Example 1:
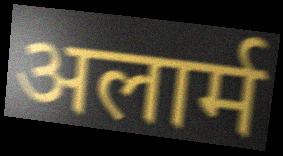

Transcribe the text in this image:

अलार्म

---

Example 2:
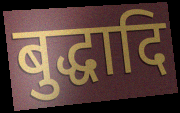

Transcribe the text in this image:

बुद्धादि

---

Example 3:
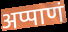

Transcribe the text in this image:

अप्पाणं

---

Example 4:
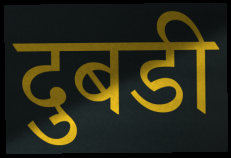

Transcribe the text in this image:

दुबडी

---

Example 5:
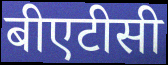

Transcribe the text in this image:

बीएटीसी